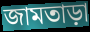
জামতাড়া